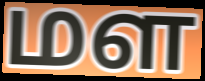
மள